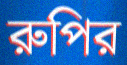
রুপির